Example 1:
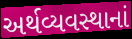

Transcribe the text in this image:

અર્થવ્યવસ્થાનાં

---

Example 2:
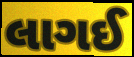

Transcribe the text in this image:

લાગઈ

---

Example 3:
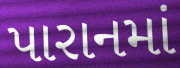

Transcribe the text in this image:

પારાનમાં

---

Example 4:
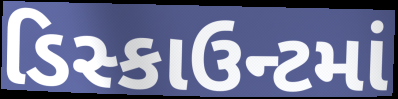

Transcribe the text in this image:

ડિસ્કાઉન્ટમાં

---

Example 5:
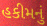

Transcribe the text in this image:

હકીમનું